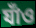
যাঁও